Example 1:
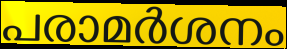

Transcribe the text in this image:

പരാമർശനം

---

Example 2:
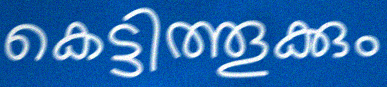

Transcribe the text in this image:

കെട്ടിത്തൂക്കും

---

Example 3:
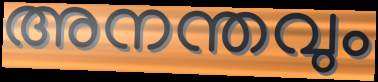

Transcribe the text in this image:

അനന്തവും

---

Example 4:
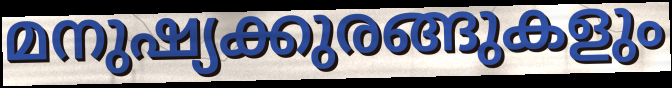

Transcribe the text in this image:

മനുഷ്യക്കുരങ്ങുകളും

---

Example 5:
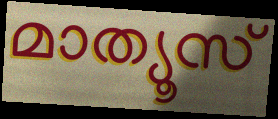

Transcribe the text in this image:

മാത്യൂസ്